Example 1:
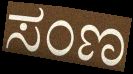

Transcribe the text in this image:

ಸಂಣ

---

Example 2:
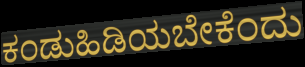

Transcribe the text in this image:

ಕಂಡುಹಿಡಿಯಬೇಕೆಂದು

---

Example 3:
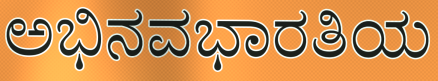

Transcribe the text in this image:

ಅಭಿನವಭಾರತಿಯ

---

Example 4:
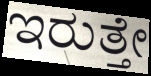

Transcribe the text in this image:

ಇರುತ್ತೇ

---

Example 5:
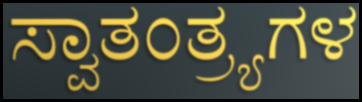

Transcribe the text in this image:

ಸ್ವಾತಂತ್ರ್ಯಗಳ